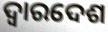
ଦ୍ଵାରଦେଶ